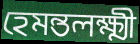
হেমন্তলক্ষ্মী